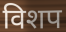
विशप